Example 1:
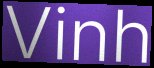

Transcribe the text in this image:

Vinh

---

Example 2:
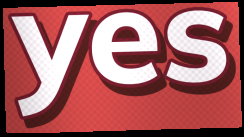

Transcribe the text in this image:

yes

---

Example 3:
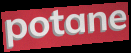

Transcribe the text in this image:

potane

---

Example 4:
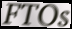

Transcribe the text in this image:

FTOs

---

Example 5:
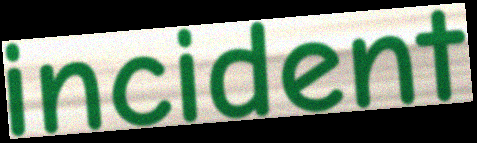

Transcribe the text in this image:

incident